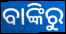
ବାଙ୍କିରୁ